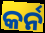
କର୍ନ